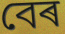
বেৰ